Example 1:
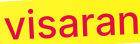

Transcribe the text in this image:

visaran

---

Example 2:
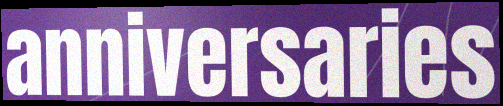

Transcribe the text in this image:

anniversaries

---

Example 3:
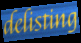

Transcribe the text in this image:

delisting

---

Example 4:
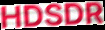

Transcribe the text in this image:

HDSDR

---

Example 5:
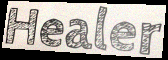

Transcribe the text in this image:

Healer